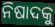
ନିଷାଦକୁ